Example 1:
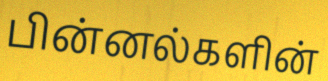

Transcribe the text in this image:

பின்னல்களின்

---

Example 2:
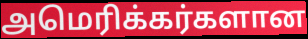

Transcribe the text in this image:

அமெரிக்கர்களான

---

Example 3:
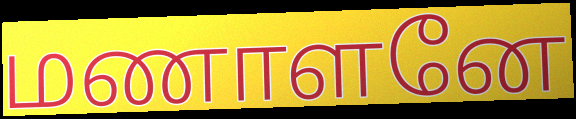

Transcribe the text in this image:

மணாளனே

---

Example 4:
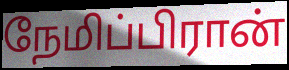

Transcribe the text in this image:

நேமிப்பிரான்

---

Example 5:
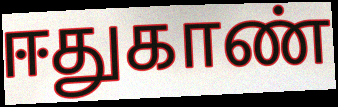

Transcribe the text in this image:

ஈதுகாண்